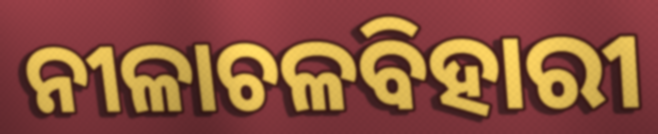
ନୀଳାଚଳବିହାରୀ